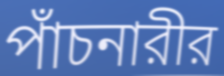
পাঁচনারীর